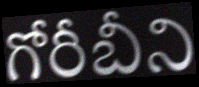
గోరీబీని